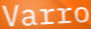
Varro